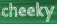
cheeky